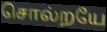
சொல்றயே